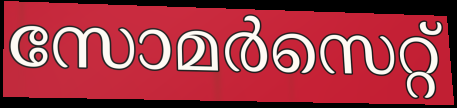
സോമർസെറ്റ്